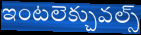
ఇంటలెక్చువల్స్